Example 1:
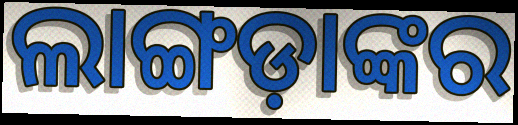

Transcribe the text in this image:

ଲାଙ୍ଗଡ଼ାଙ୍କର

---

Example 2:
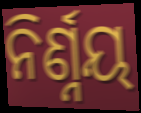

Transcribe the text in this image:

ନିର୍ଣ୍ନୟ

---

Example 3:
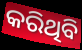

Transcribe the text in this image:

କରିଥିବି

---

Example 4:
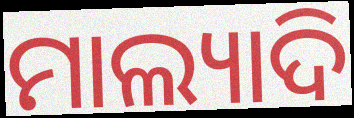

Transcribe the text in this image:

ମାଲ୍ୟାଦି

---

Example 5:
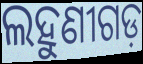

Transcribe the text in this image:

ଲହୁଣୀଗଡ଼